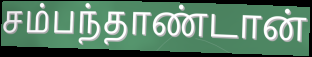
சம்பந்தாண்டான்